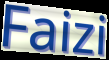
Faizi